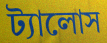
ট্যালোস